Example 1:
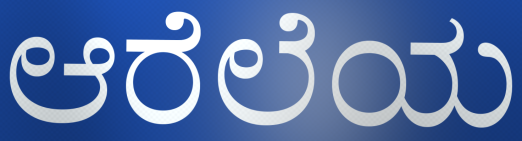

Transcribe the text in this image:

ಆರೆಲೆಯ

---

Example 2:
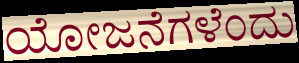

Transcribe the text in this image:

ಯೋಜನೆಗಳೆಂದು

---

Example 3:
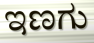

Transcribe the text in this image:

ಇಣಗು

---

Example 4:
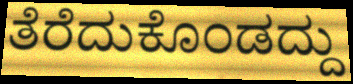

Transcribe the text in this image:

ತೆರೆದುಕೊಂಡದ್ದು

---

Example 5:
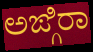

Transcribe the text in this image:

ಅಙ್ಗಿರಾ